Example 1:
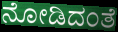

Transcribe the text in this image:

ನೋಡಿದಂತೆ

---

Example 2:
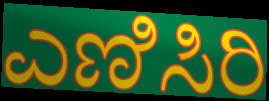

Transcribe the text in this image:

ಎಣಿಸಿರಿ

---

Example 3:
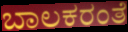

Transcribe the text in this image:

ಬಾಲಕರಂತೆ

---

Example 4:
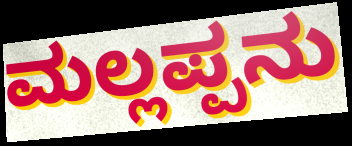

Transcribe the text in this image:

ಮಲ್ಲಪ್ಪನು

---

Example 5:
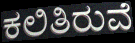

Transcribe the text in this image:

ಕಲಿತಿರುವೆ